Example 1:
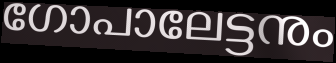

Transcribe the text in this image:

ഗോപാലേട്ടനും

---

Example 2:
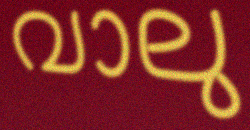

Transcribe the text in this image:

വാലു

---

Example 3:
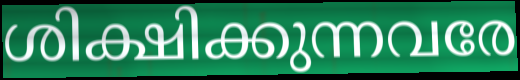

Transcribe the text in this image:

ശിക്ഷിക്കുന്നവരേ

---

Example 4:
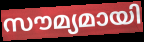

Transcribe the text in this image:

സൗമ്യമായി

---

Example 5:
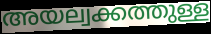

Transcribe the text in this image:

അയല്വക്കത്തുള്ള